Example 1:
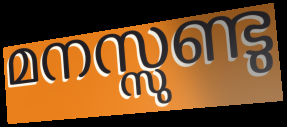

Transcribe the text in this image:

മനസ്സുണ്ടു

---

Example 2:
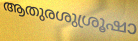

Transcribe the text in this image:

ആതുരശുശ്രൂഷാ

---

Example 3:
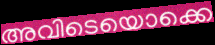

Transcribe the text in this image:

അവിടെയൊക്കെ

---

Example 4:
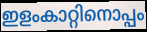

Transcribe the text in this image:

ഇളംകാറ്റിനൊപ്പം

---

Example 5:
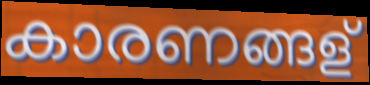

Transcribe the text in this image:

കാരണങ്ങള്